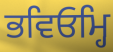
ਭਵਿਓਮ੍ਹਿ